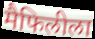
मैफिलीला